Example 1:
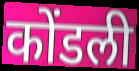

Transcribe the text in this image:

कोंडली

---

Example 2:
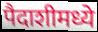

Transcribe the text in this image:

पैदाशीमध्ये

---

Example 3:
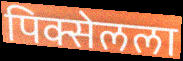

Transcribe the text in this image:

पिक्सेलला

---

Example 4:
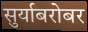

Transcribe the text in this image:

सुर्याबरोबर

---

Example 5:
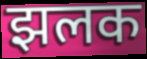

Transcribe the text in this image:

झलक